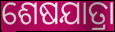
ଶେଷଯାତ୍ରା